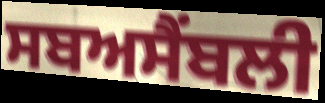
ਸਬਅਸੈਂਬਲੀ